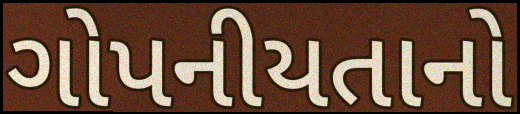
ગોપનીયતાનો